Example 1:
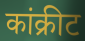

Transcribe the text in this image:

कांक्रीट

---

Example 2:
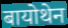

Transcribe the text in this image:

बायोथेन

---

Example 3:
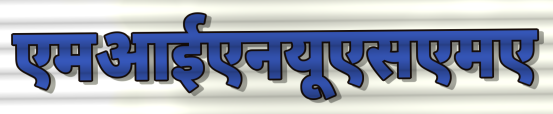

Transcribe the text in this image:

एमआईएनयूएसएमए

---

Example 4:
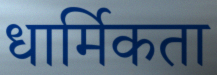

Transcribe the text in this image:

धार्मिकता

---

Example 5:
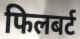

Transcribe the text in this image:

फिलबर्ट